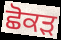
ਛੋਕੜ